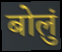
बोलुं